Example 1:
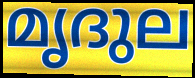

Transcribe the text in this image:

മൃദുല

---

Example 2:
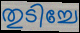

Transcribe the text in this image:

തുടിച്ചേ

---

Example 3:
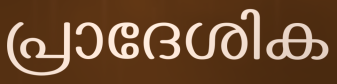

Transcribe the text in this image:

പ്രാദേശിക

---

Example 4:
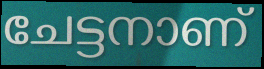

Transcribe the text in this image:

ചേട്ടനാണ്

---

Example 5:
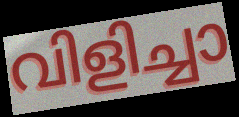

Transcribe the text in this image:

വിളിച്ചാ